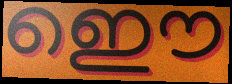
ഇൌ